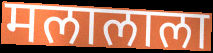
मलालाला